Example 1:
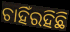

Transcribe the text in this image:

ଚାହିଁରହିଛି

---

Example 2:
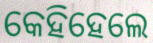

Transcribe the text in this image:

କେହିହେଲେ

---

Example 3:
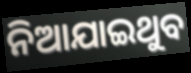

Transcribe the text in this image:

ନିଆଯାଇଥୁବ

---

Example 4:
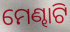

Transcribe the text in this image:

ମେଣ୍ଢାଟି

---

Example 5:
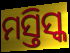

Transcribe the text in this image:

ମସ୍ତିସ୍କ